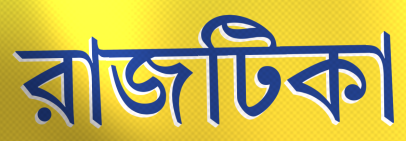
রাজটিকা